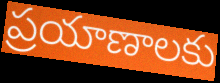
ప్రయాణాలకు